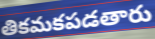
తికమకపడతారు